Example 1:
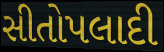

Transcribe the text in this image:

સીતોપલાદી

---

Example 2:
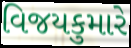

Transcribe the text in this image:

વિજયકુમારે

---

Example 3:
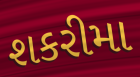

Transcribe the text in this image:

શકરીમા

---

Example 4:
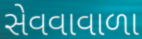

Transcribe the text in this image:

સેવવાવાળા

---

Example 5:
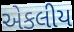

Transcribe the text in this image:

એકલીય